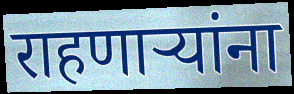
राहणाऱ्यांना